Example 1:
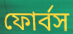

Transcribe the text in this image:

ফোর্বস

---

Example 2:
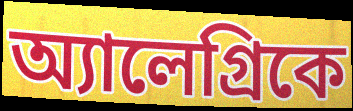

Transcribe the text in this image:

অ্যালেগ্রিকে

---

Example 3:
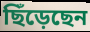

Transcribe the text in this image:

ছিঁড়েছেন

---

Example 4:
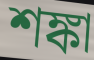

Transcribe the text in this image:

শঙ্কা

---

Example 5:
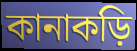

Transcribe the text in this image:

কানাকড়ি